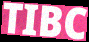
TIBC